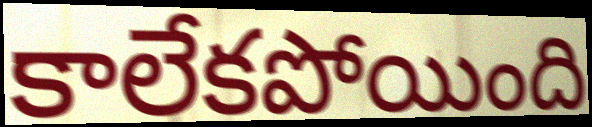
కాలేకపోయింది